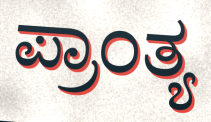
ಪ್ರಾಂತ್ಯ